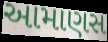
આમાણસ